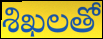
శిఖలతో